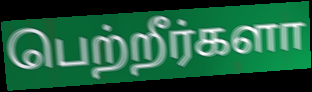
பெற்றீர்களா